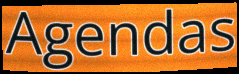
Agendas